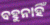
ବହୁନାହିଁ